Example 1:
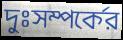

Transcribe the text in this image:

দুঃসম্পর্কের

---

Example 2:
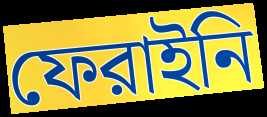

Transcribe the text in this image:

ফেরাইনি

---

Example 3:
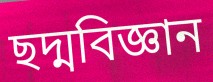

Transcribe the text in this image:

ছদ্মবিজ্ঞান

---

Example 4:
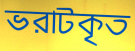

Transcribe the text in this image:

ভরাটকৃত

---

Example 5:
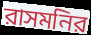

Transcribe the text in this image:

রাসমনির